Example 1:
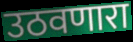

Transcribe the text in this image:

उठवणारा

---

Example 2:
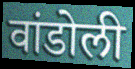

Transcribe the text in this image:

वांडोली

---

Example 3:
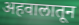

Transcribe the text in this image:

अहवालातून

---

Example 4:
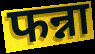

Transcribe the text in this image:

फन्ना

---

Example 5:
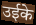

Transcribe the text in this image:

उईके